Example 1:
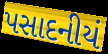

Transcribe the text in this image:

પસાદનીયં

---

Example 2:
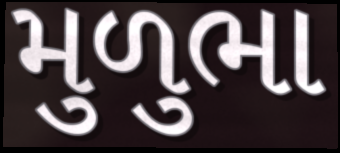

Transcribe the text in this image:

મુળુભા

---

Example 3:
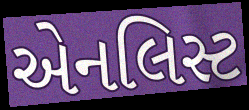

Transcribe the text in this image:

એનલિસ્ટ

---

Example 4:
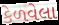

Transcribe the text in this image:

કેળવેલા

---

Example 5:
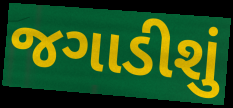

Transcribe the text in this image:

જગાડીશું